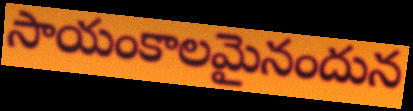
సాయంకాలమైనందున